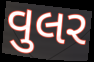
વુલર